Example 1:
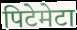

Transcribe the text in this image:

पिटेमेटा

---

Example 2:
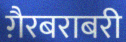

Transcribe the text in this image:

ग़ैरबराबरी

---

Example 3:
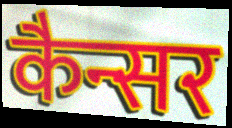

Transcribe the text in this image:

कैन्सर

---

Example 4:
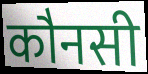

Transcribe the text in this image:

कौनसी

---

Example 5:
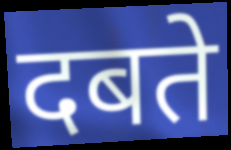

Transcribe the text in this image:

दबते